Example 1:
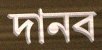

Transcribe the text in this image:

দানব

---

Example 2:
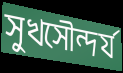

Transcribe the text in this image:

সুখসৌন্দর্য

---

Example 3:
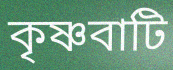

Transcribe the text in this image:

কৃষ্ণবাটি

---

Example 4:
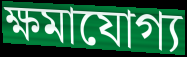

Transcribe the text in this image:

ক্ষমাযোগ্য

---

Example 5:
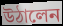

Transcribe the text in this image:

উঠালেন